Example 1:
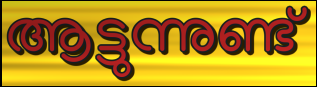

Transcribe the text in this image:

ആട്ടുന്നുണ്ട്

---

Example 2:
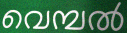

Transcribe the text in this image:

വെമ്പൽ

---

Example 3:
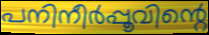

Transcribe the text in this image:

പനിനീർപ്പൂവിന്റെ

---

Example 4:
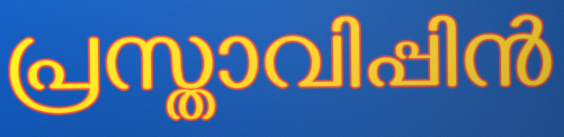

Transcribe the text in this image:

പ്രസ്താവിപ്പിൻ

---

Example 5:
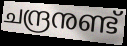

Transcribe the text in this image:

ചന്ദ്രനുണ്ട്